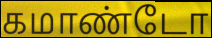
கமாண்டோ